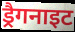
ड्रैगनाइट